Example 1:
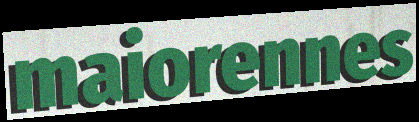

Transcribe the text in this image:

maiorennes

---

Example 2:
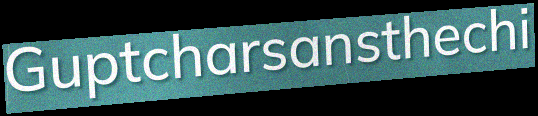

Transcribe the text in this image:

Guptcharsansthechi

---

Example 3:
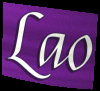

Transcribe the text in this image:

Lao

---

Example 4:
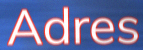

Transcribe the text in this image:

Adres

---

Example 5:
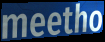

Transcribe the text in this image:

meetho